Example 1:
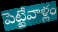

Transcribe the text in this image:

పెట్టేవాళ్లం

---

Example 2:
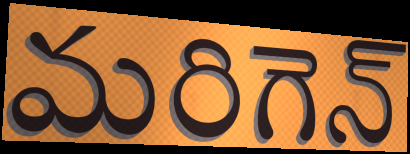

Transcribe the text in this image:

మరిగెన్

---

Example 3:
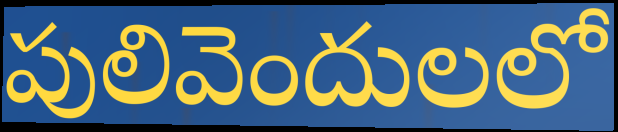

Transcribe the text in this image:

పులివెందులలో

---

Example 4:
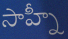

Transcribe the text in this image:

సాహ్నీ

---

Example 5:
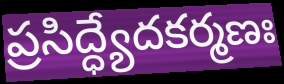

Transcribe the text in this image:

ప్రసిద్ధ్యేదకర్మణః